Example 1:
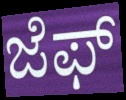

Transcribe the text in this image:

ಜೆಫ್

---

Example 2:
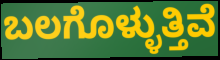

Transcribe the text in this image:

ಬಲಗೊಳ್ಳುತ್ತಿವೆ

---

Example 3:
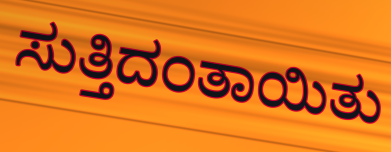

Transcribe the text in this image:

ಸುತ್ತಿದಂತಾಯಿತು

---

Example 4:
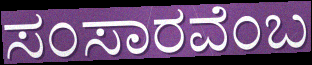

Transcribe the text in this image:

ಸಂಸಾರವೆಂಬ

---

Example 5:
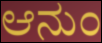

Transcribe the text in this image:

ಆನುಂ